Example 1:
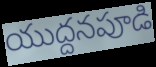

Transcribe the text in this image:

యుద్దనపూడి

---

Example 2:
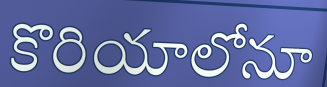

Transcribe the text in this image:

కొరియాలోనూ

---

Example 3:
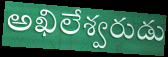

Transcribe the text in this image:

అఖిలేశ్వరుడు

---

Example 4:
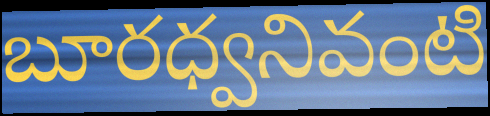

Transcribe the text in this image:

బూరధ్వనివంటి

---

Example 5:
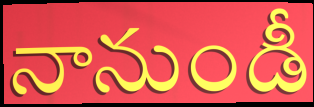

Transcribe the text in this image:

నానుండీ